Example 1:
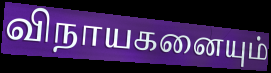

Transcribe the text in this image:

விநாயகனையும்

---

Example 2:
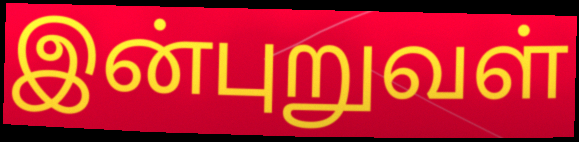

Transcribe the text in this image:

இன்புறுவள்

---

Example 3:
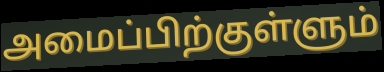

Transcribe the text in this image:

அமைப்பிற்குள்ளும்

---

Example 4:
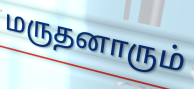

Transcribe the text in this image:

மருதனாரும்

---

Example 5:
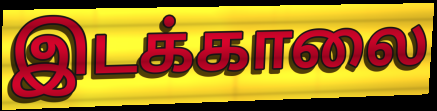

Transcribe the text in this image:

இடக்காலை